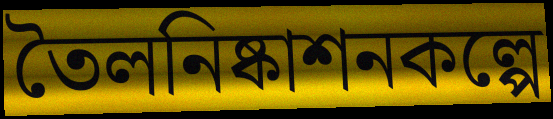
তৈলনিষ্কাশনকল্পে